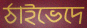
ঠাইভেদে